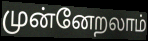
முன்னேறலாம்